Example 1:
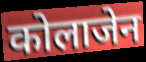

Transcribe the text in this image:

कोलाजेन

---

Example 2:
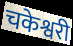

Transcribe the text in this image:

चकेश्वरी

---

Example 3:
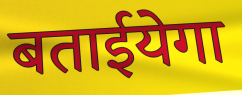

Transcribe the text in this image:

बताईयेगा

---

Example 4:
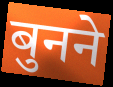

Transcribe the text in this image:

बुनने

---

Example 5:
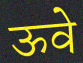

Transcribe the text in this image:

ऊवे